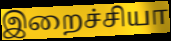
இறைச்சியா